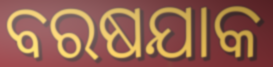
ବରଷଯାକ